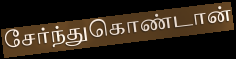
சேர்ந்துகொண்டான்